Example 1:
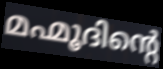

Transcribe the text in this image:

മഹ്മൂദിന്റെ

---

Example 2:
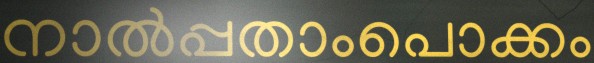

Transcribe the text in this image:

നാൽപ്പതാംപൊക്കം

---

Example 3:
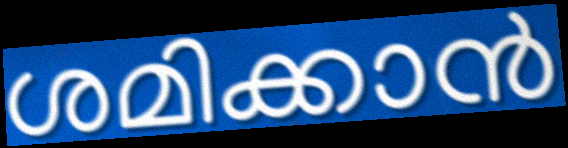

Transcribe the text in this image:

ശമിക്കാൻ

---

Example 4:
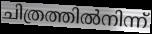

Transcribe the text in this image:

ചിത്രത്തിൽനിന്ന്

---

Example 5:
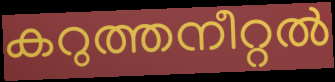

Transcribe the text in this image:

കറുത്തനീറ്റൽ